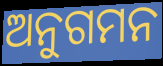
ଅନୁଗମନ